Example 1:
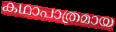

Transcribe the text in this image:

കഥാപാത്രമായ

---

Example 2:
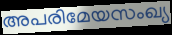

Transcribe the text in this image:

അപരിമേയസംഖ്യ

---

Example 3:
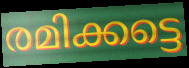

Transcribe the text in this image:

രമിക്കട്ടെ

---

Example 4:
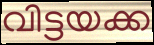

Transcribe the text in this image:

വിട്ടയക്ക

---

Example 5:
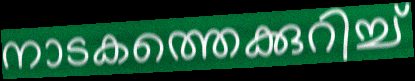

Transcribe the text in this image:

നാടകത്തെക്കുറിച്ച്